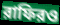
রাফিরও